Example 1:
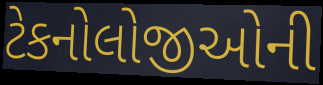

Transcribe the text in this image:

ટેકનોલોજીઓની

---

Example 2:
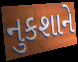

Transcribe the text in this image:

નુકશાને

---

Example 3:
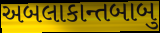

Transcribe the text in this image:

અબલાકાન્તબાબુ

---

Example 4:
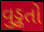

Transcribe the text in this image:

વુડ્ઢતો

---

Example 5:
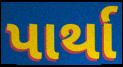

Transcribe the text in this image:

પાર્થા